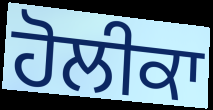
ਹੋਲੀਕਾ